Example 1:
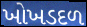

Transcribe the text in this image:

ખોખડદળ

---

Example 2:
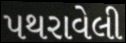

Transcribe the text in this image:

પથરાવેલી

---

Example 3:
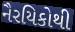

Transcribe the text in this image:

નૈરયિકોથી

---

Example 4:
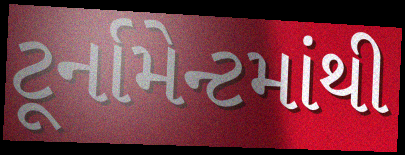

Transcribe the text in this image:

ટૂર્નામેન્ટમાંથી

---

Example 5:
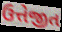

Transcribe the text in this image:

ઉત્તેજીત